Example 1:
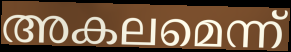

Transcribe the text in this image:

അകലമെന്ന്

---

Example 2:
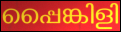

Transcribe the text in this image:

പ്പൈങ്കിളി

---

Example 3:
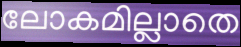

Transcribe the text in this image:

ലോകമില്ലാതെ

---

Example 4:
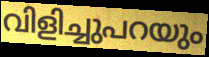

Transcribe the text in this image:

വിളിച്ചുപറയും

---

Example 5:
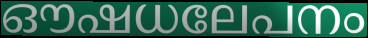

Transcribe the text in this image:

ഔഷധലേപനം